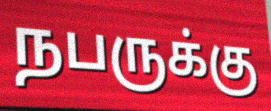
நபருக்கு